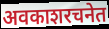
अवकाशरचनेत